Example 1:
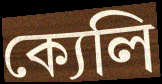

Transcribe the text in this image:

ক্যেলি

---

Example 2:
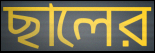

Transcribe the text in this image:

ছালের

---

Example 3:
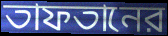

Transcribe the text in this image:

তাফতানের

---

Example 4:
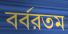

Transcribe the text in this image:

বর্বরতম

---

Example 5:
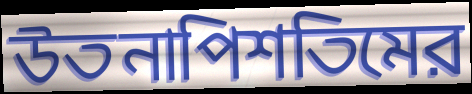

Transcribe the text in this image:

উতনাপিশতিমের